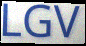
LGV